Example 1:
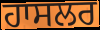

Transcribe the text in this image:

ਹਾਸਲਰ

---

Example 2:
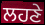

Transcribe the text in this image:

ਲਹਣੇ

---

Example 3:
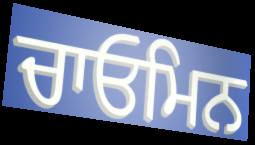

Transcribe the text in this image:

ਚਾਓਮਿਨ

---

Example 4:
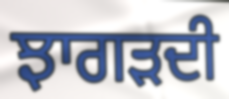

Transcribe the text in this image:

ਝਾਗੜਦੀ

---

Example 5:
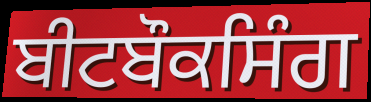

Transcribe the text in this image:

ਬੀਟਬੌਕਸਿੰਗ